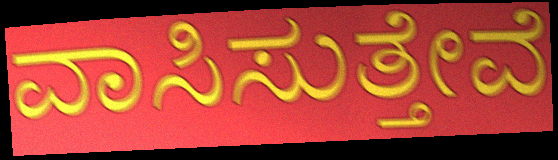
ವಾಸಿಸುತ್ತೇವೆ